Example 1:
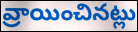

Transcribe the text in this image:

వ్రాయించినట్లు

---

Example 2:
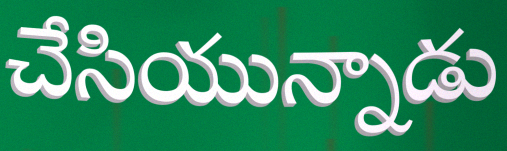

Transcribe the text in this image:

చేసియున్నాడు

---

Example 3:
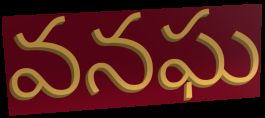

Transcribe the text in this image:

వనఘ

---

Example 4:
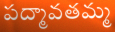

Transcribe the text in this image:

పద్మావతమ్మ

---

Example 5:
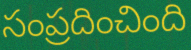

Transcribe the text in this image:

సంప్రదించింది